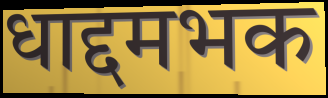
धाद्दमभक